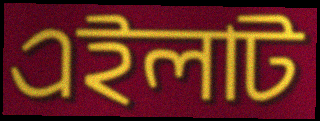
এইলাট